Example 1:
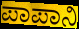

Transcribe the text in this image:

ಪಾಪಾನಿ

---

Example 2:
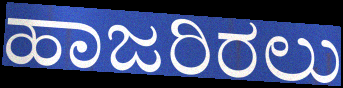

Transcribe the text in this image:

ಹಾಜರಿರಲು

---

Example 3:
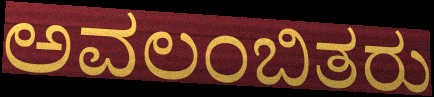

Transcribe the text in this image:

ಅವಲಂಬಿತರು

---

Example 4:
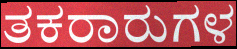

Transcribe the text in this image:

ತಕರಾರುಗಳ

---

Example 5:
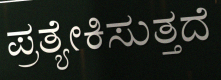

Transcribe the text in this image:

ಪ್ರತ್ಯೇಕಿಸುತ್ತದೆ